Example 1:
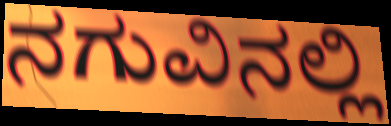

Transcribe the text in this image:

ನಗುವಿನಲ್ಲಿ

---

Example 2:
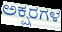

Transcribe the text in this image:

ಅಕ್ಷರಗಳ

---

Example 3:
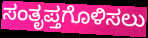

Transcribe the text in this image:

ಸಂತೃಪ್ತಗೊಳಿಸಲು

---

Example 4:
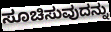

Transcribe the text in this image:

ಸೂಚಿಸುವುದನ್ನು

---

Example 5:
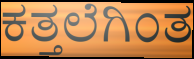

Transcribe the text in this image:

ಕತ್ತಲೆಗಿಂತ